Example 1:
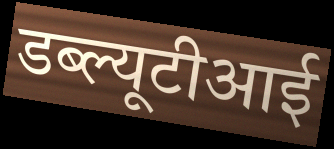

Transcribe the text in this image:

डब्ल्यूटीआई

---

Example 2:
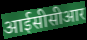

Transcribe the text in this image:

आईसीसीआर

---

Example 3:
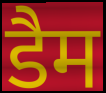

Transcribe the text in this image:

डैम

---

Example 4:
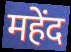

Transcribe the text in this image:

महेंद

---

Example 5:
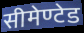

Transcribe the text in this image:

सीमेण्टेड